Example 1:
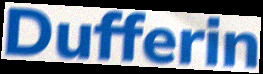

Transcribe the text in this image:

Dufferin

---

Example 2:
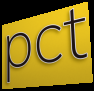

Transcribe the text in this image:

pct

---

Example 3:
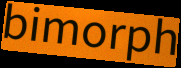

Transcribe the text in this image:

bimorph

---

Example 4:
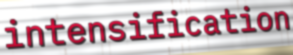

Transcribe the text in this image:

intensification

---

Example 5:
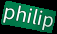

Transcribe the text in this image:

philip